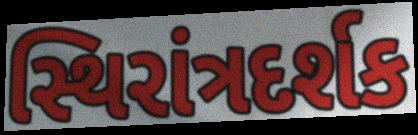
સ્થિરાંત્રદર્શક